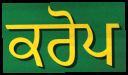
ਕਰੋਪ